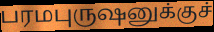
பரமபுருஷனுக்குச்